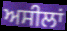
ਅਸੀਲਾਂ